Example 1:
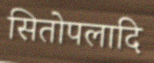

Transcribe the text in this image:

सितोपलादि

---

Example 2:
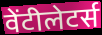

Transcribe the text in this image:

वेंटीलेटर्स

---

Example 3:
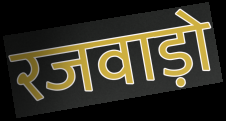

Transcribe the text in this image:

रजवाड़ो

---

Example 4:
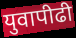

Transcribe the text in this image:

युवापीढी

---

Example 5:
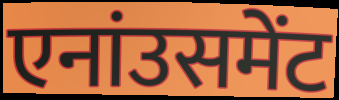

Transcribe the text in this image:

एनांउसमेंट